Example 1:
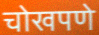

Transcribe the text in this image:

चोखपणे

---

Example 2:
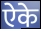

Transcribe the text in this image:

ऐके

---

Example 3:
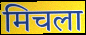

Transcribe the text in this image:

मिचला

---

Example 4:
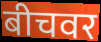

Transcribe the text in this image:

बीचवर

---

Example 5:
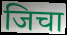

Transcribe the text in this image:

जिचा